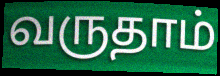
வருதாம்